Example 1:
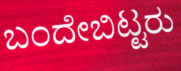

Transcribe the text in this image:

ಬಂದೇಬಿಟ್ಟರು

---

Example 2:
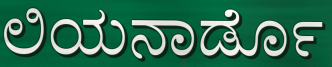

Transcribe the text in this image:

ಲಿಯನಾರ್ಡೊ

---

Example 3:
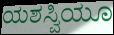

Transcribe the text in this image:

ಯಶಸ್ವಿಯೂ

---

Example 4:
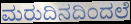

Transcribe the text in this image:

ಮರುದಿನದಿಂದಲೆ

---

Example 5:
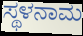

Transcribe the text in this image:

ಸ್ಥಳನಾಮ